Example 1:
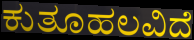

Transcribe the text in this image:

ಕುತೂಹಲವಿದೆ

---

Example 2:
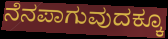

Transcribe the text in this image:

ನೆನಪಾಗುವುದಕ್ಕೂ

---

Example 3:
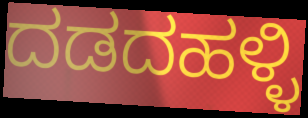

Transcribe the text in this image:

ದಡದಹಳ್ಳಿ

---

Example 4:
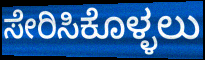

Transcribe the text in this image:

ಸೇರಿಸಿಕೊಳ್ಳಲು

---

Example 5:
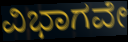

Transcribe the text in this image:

ವಿಭಾಗವೇ